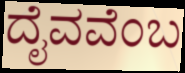
ದೈವವೆಂಬ